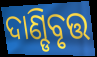
ଦାଣ୍ଡିବୃତ୍ତ